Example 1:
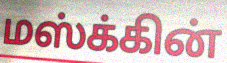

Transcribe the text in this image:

மஸ்க்கின்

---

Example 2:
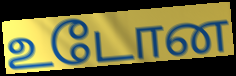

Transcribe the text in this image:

உடோன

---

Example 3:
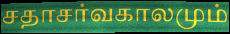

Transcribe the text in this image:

சதாசர்வகாலமும்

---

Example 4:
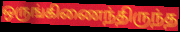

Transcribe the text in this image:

ஒருங்கிணைந்திருந்த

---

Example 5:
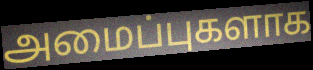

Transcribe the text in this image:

அமைப்புகளாக